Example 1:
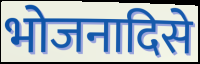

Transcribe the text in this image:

भोजनादिसे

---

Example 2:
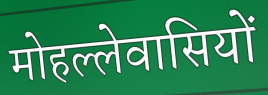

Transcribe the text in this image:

मोहल्लेवासियों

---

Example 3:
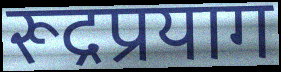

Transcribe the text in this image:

रूद्रप्रयाग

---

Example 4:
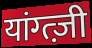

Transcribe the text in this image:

यांग्त्ज़ी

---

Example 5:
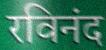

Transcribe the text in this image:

रविनंद